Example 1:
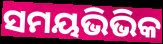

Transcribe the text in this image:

ସମୟଭିଭିକ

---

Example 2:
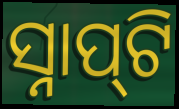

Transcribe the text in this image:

ସ୍ନାପ୍‍ଟି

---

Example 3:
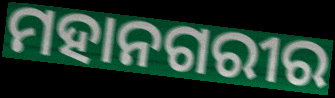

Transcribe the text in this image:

ମହାନଗରୀର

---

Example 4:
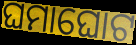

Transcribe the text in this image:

ଘମାଘୋଟ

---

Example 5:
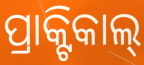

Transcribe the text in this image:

ପ୍ରାକ୍ଟିକାଲ୍